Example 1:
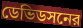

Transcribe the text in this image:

ডেভিডসনের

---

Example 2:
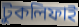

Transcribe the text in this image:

টুকলিফাই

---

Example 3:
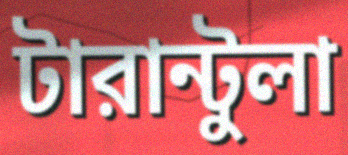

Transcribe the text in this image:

টারান্টুলা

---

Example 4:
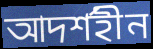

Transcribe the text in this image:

আদর্শহীন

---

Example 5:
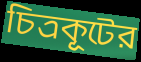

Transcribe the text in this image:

চিত্রকূটের